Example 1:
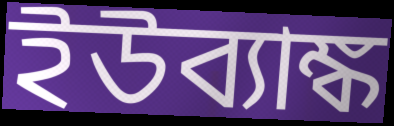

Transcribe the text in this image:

ইউব্যাঙ্ক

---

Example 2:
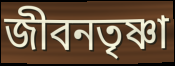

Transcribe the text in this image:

জীবনতৃষ্ণা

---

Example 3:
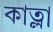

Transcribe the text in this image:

কাত্লা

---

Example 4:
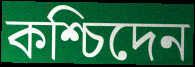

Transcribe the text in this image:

কশ্চিদেন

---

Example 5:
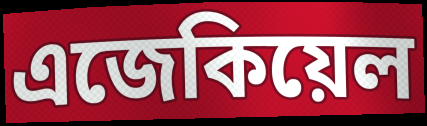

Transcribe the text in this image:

এজেকিয়েল